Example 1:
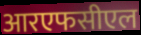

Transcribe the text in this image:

आरएफसीएल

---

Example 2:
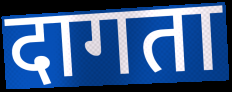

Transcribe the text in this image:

दागता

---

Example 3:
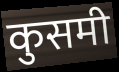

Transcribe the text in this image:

कुसमी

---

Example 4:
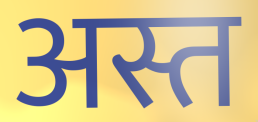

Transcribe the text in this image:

अस्त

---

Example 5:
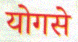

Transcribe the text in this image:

योगसे